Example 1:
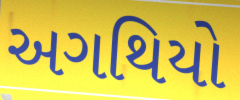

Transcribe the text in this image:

અગથિયો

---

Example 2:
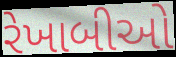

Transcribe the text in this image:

રેખાબીઓ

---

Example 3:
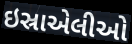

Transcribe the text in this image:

ઇસ્રાએલીઓ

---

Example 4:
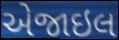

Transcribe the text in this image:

એજાઇલ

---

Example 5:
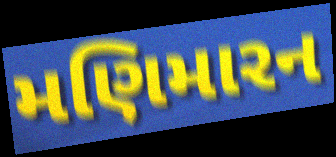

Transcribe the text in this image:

મણિમારન